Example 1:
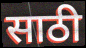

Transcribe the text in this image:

साठी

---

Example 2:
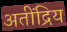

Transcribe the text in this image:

अतींद्रिय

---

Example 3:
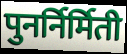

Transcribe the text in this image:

पुनर्निर्मिती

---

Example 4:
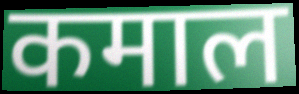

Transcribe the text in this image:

कमाल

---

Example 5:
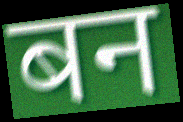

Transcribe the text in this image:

बन